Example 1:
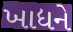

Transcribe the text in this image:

ખાદ્યને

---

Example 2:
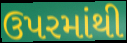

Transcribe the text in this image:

ઉપરમાંથી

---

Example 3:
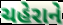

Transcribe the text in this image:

ચહેરાને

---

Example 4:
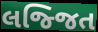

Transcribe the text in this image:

લજ્જિત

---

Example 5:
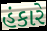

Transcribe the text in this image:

હંકારે